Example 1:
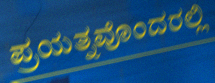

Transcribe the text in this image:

ಪ್ರಯತ್ನವೊಂದರಲ್ಲಿ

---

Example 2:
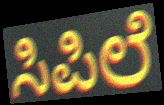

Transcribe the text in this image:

ಸಿಪಿಲೆ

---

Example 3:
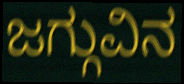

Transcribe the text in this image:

ಜಗ್ಗುವಿನ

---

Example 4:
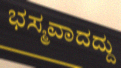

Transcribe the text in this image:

ಭಸ್ಮವಾದದ್ದು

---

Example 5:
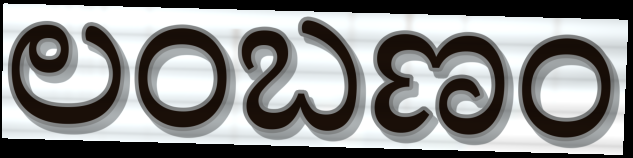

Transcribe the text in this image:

ಲಂಬಣಂ